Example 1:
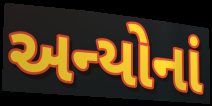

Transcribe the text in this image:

અન્યોનાં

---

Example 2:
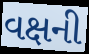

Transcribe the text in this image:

વક્ષની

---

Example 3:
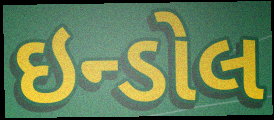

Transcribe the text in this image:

ઇન્ડોલ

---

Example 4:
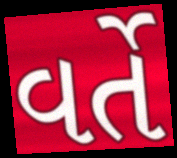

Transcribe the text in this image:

વર્તે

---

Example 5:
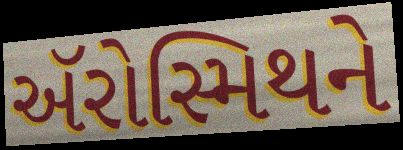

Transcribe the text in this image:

ઍરોસ્મિથને